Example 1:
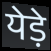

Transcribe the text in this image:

येड़े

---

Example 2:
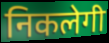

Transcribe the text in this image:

निकलेगी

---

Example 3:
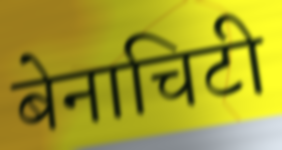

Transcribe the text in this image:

बेनाचिटी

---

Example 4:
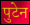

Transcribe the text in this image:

पुटेन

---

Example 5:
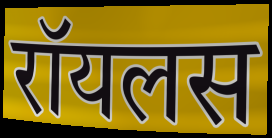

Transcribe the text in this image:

रॉयलस